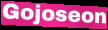
Gojoseon